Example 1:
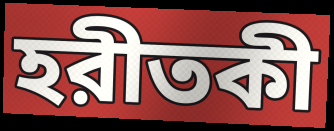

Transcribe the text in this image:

হরীতকী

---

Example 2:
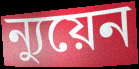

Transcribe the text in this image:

ন্যুয়েন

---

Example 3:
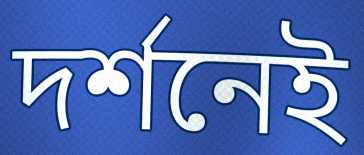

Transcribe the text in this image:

দর্শনেই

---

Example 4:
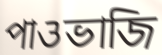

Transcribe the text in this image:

পাওভাজি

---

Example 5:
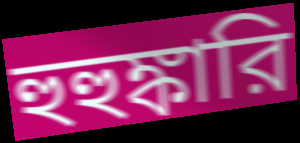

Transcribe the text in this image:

হুহুঙ্কারি